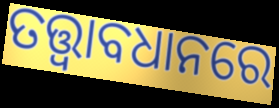
ତତ୍ତ୍ବାବଧାନରେ